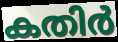
കതിർ